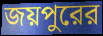
জয়পুরের